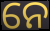
ନେ